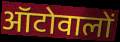
ऑटोवालों